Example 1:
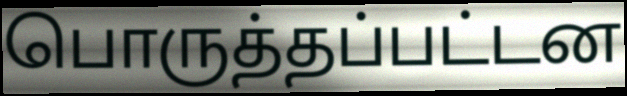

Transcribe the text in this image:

பொருத்தப்பட்டன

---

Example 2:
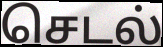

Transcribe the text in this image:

செடல்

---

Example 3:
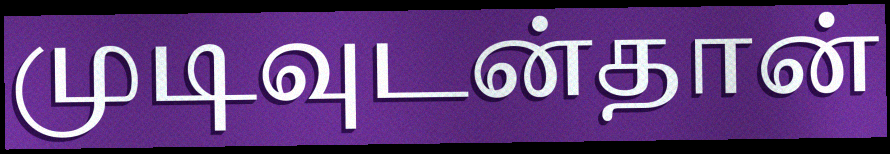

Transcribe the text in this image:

முடிவுடன்தான்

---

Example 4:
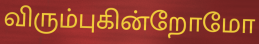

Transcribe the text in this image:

விரும்புகின்றோமோ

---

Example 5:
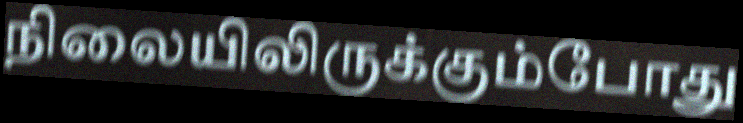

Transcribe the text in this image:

நிலையிலிருக்கும்போது